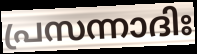
പ്രസന്നാദിഃ